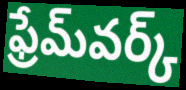
ఫ్రేమ్‌వర్క్